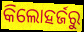
କିଲୋହର୍ଜରୁ